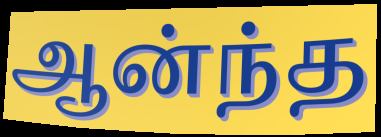
ஆன்ந்த